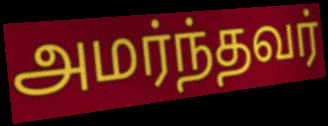
அமர்ந்தவர்